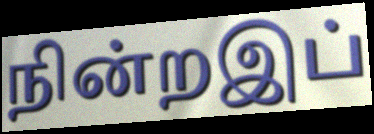
நின்றஇப்